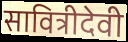
सावित्रीदेवी